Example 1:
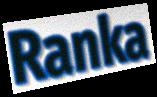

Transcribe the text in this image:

Ranka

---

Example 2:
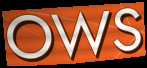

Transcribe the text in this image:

OWS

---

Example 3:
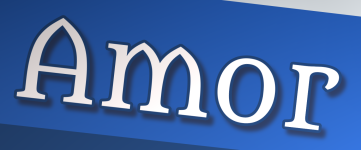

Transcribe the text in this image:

Amor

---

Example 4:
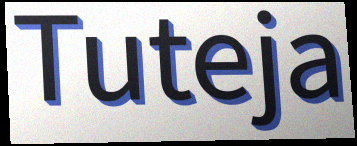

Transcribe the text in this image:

Tuteja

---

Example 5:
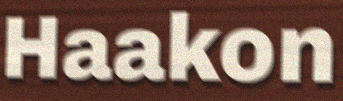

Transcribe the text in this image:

Haakon